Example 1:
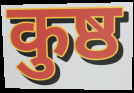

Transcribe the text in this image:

कुष्ठ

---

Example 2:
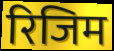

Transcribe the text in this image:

रिजिम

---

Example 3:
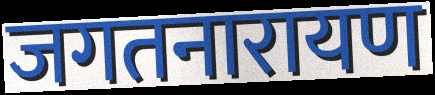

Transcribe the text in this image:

जगतनारायण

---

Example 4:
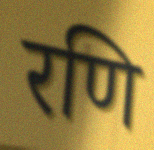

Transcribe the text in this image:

रणि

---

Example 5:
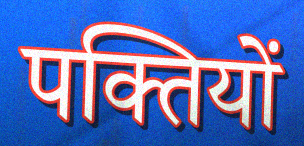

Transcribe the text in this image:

पक्तियों